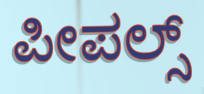
ಪೀಪಲ್ಸ್